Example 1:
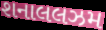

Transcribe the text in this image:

શનાલલઝમ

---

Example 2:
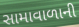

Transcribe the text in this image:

સામાવાળાની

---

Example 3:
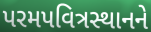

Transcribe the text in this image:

પરમપવિત્રસ્થાનને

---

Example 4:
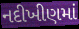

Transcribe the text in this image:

નદીખીણમાં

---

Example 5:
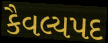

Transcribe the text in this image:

કૈવલ્યપદ